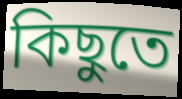
কিছুতে